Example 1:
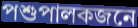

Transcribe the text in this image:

পশুপালকজনে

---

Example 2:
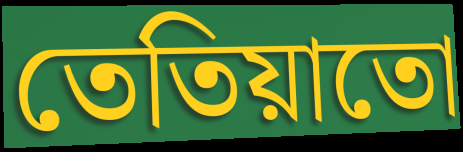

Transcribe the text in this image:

তেতিয়াতো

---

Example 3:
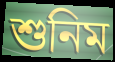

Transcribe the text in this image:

শুনিম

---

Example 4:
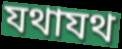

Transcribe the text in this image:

যথাযথ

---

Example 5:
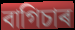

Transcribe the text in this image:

বাগিচাৰ